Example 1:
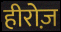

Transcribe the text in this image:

हीरोज़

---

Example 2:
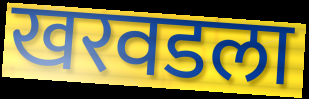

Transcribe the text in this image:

खरवडला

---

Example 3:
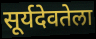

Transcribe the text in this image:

सूर्यदेवतेला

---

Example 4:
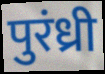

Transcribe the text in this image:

पुरंध्री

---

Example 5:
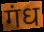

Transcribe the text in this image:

गंध